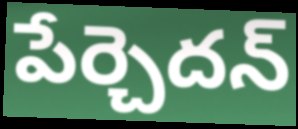
పేర్చెదన్